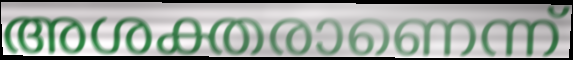
അശക്തരാണെന്ന്